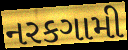
નરકગામી